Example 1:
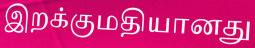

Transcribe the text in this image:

இறக்குமதியானது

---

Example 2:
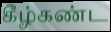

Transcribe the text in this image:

கீழ்கண்ட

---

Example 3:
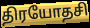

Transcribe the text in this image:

திரயோதசி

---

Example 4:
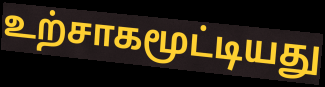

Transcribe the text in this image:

உற்சாகமூட்டியது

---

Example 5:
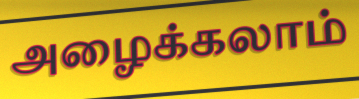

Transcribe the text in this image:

அழைக்கலாம்